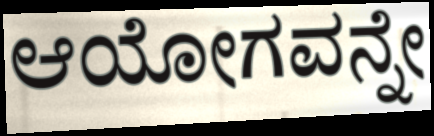
ಆಯೋಗವನ್ನೇ